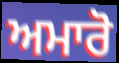
ਅਮਾਰੋ